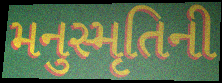
મનુસ્મૃતિની